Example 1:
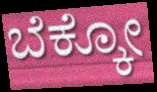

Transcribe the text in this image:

ಬೆಕ್ಕೋ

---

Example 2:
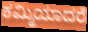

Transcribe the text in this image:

ಕಮ್ಮಿಯಾದರೆ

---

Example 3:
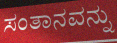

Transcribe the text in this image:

ಸಂತಾನವನ್ನು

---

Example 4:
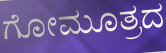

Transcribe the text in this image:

ಗೋಮೂತ್ರದ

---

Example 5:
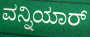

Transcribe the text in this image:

ವನ್ನಿಯಾರ್